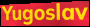
Yugoslav